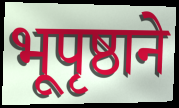
भूपृष्ठाने